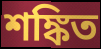
শঙ্কিত